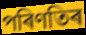
পৰিণতিৰ